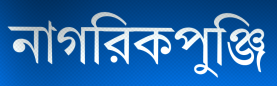
নাগরিকপুঞ্জি